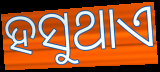
ହସୁଥାଏ